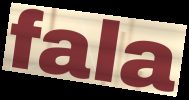
fala